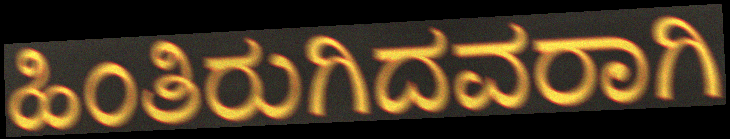
ಹಿಂತಿರುಗಿದವರಾಗಿ